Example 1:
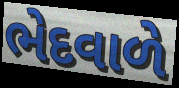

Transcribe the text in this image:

ભેદવાળે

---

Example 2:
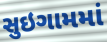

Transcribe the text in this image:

સુઇગામમાં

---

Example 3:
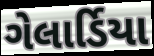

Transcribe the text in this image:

ગેલાર્ડિયા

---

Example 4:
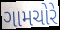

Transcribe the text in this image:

ગામચોરે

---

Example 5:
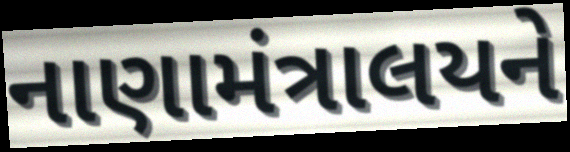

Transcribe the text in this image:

નાણામંત્રાલયને